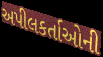
અપીલકર્તાઓની